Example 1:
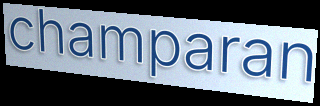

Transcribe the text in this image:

champaran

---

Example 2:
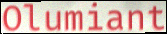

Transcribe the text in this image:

Olumiant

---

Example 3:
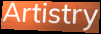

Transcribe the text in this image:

Artistry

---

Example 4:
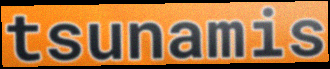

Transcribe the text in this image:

tsunamis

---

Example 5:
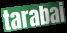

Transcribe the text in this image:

tarabai